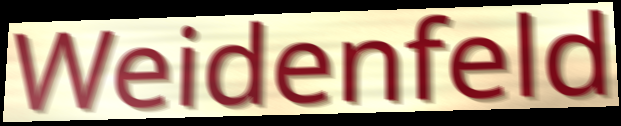
Weidenfeld